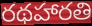
రథహారతి